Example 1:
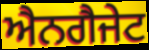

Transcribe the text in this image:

ਐਨਗੈਜੇਟ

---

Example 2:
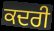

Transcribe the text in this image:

ਕਦਰੀ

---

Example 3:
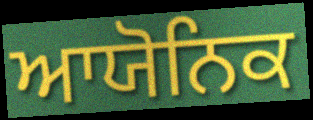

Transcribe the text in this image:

ਆਯੋਨਿਕ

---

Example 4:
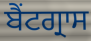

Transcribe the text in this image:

ਬੈਂਟਗ੍ਰਾਸ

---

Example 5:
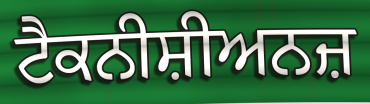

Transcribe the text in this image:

ਟੈਕਨੀਸ਼ੀਅਨਜ਼